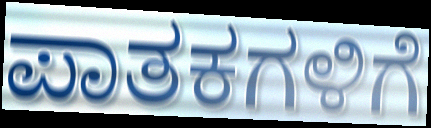
ಪಾತಕಗಳಿಗೆ